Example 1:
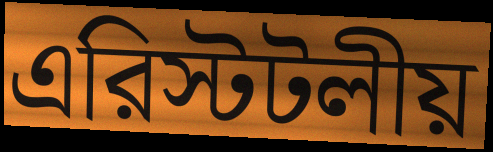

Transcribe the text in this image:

এরিস্টটলীয়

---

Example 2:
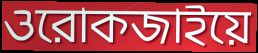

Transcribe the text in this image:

ওরোকজাইয়ে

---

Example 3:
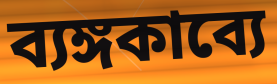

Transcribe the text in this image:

ব্যঙ্গকাব্যে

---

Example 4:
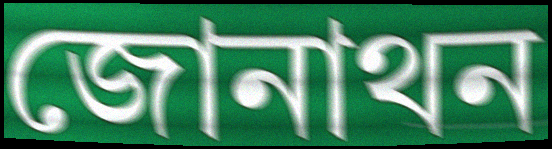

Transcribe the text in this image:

জোনাথন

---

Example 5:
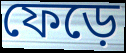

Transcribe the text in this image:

ফেড়ে